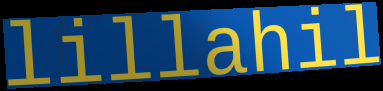
lillahil